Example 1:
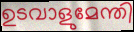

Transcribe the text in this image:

ഉടവാളുമേന്തി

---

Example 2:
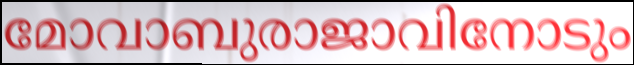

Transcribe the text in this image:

മോവാബുരാജാവിനോടും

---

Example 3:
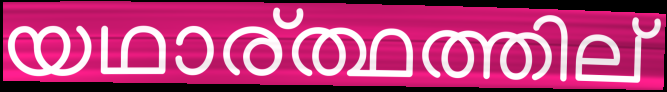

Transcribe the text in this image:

യഥാര്ത്ഥത്തില്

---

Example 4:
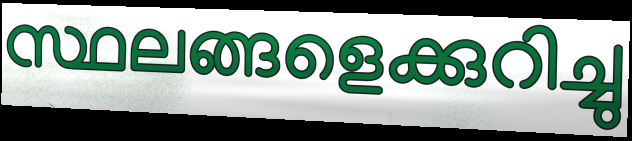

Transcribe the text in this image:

സ്ഥലങ്ങളെക്കുറിച്ചു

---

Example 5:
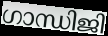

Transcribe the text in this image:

ഗാന്ധിജി